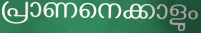
പ്രാണനെക്കാളും